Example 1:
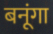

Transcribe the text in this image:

बनूंगा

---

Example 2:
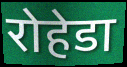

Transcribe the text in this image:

रोहेडा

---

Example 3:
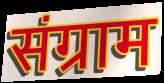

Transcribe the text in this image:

संग्राम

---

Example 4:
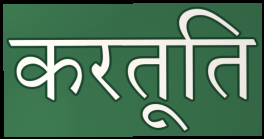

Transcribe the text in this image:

करतूति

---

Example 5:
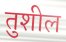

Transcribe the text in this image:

तुशील